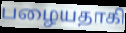
பழையதாகி